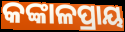
କଙ୍କାଳପ୍ରାୟ